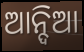
ଆନ୍ଦିଆ